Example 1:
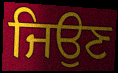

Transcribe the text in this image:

ਜਿਉਣ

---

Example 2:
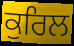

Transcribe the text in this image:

ਕੁਰਿਲ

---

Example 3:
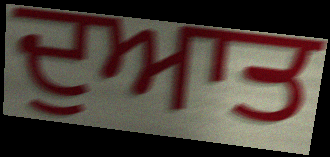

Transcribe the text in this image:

ਦੁਆਤ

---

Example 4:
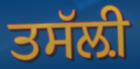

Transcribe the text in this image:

ਤਸੱਲ਼ੀ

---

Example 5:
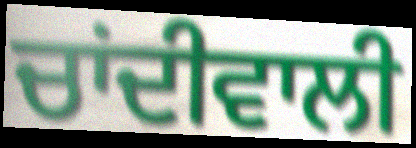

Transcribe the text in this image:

ਚਾਂਦੀਵਾਲੀ